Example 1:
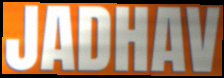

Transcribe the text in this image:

JADHAV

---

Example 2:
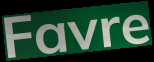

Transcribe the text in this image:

Favre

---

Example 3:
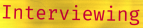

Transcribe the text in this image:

Interviewing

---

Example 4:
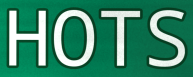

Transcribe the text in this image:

HOTS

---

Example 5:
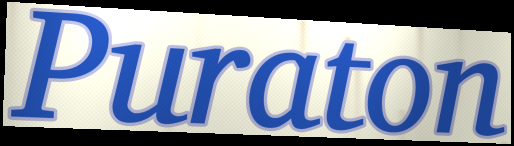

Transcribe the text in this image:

Puraton